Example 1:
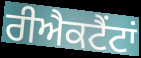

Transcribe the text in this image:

ਰੀਐਕਟੈਂਟਾਂ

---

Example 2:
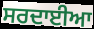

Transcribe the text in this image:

ਸਰਦਾਈਆ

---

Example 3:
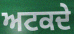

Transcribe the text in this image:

ਅਟਕਦੇ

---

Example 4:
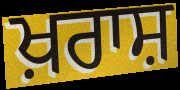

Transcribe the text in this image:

ਖ਼ਰਾਸ਼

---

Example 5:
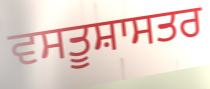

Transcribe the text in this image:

ਵਸਤੂਸ਼ਾਸਤਰ